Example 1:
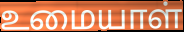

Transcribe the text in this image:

உமையாள்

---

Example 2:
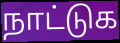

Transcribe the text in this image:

நாட்டுக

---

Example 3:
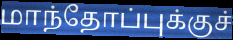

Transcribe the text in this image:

மாந்தோப்புக்குச்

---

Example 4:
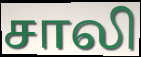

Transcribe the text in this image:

சாலி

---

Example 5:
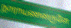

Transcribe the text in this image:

நாராயணனருளே